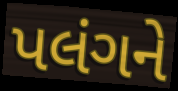
પલંગને